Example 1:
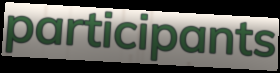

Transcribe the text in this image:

participants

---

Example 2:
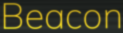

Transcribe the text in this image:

Beacon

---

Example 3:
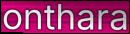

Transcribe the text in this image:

onthara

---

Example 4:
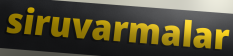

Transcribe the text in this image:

siruvarmalar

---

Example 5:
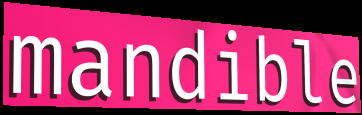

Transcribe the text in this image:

mandible